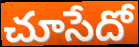
చూసేదో